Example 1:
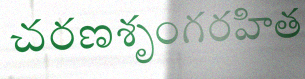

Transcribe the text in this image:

చరణశృంగరహిత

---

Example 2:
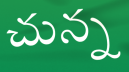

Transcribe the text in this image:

చున్న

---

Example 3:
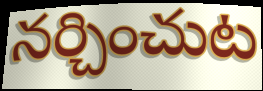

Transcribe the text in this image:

నర్చించుట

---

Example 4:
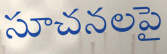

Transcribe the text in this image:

సూచనలపై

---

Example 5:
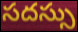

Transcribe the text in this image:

సదస్సు